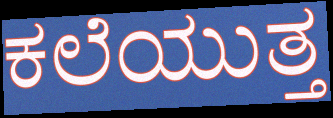
ಕಲೆಯುತ್ತ